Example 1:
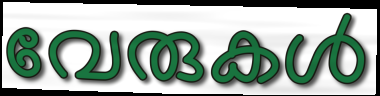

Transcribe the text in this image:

വേരുകൾ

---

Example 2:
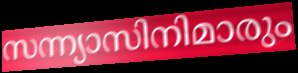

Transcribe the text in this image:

സന്ന്യാസിനിമാരും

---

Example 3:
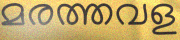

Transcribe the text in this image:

മരത്തവള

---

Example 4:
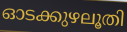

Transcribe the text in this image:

ഓടക്കുഴലൂതി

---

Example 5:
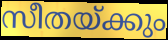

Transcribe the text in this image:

സീതയ്ക്കും